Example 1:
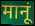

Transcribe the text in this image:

मानूं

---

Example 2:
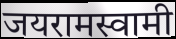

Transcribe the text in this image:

जयरामस्वामी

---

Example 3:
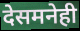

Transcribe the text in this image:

देसमनेही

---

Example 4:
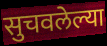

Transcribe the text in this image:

सुचवलेल्या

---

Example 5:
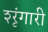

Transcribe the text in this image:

श्रृंगारी